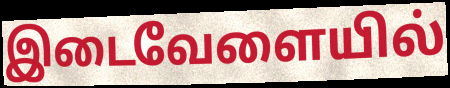
இடைவேளையில்